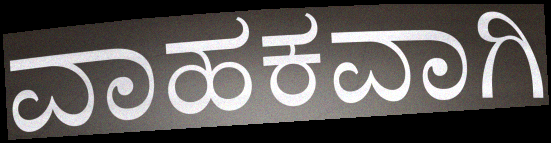
ವಾಹಕವಾಗಿ